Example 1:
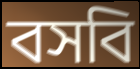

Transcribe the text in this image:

বসবি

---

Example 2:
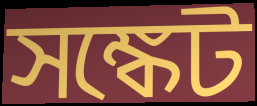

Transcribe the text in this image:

সঙ্কেট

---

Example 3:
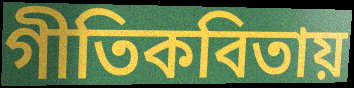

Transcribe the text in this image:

গীতিকবিতায়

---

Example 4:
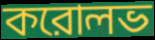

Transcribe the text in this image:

করোলভ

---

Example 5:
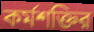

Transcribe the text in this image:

কর্মশক্তির